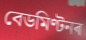
বেডমিণ্টনৰ